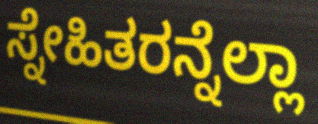
ಸ್ನೇಹಿತರನ್ನೆಲ್ಲಾ